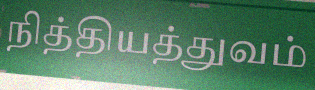
நித்தியத்துவம்